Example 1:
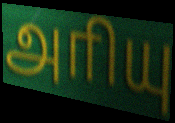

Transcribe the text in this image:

அரியு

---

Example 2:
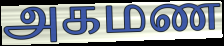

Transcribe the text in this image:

அகமண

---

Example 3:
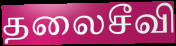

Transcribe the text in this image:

தலைசீவி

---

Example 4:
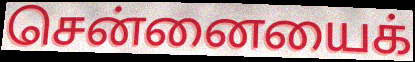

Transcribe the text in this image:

சென்னையைக்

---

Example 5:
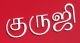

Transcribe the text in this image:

குருஜி